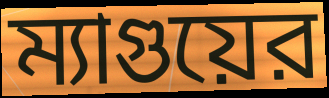
ম্যাগুয়ের